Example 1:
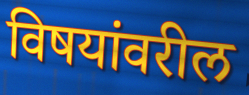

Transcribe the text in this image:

विषयांवरील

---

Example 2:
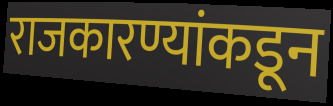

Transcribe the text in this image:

राजकारण्यांकडून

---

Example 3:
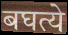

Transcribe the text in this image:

बघत्ये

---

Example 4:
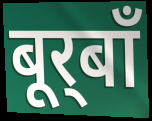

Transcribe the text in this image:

बूर्‌बाँ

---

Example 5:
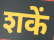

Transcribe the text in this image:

शकें